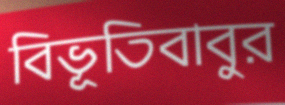
বিভূতিবাবুর